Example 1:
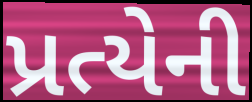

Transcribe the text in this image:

પ્રત્યેની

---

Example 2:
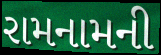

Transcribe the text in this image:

રામનામની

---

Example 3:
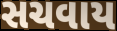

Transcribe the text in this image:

સચવાય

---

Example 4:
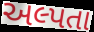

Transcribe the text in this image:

અલ્પતા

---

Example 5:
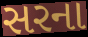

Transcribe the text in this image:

સરના